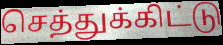
செத்துக்கிட்டு